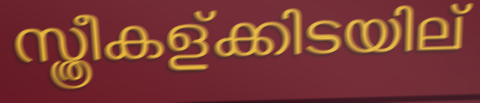
സ്ത്രീകള്ക്കിടയില്